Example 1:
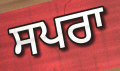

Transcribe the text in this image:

ਸਪਰਾ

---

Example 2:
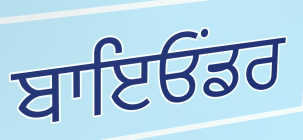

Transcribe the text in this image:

ਬਾਇਓਂਡਰ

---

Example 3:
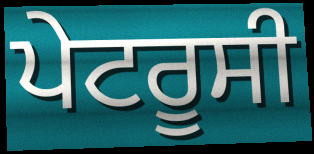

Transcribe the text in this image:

ਪੇਟਰੂਸੀ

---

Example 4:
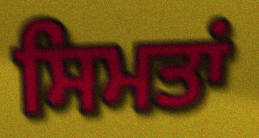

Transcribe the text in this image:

ਸਿਮਤਾਂ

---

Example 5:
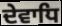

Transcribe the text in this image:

ਦੇਵਾਧਿ